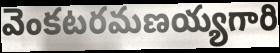
వెంకటరమణయ్యగారి